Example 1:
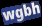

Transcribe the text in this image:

wgbh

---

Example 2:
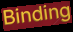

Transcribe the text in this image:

Binding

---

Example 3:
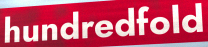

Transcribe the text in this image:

hundredfold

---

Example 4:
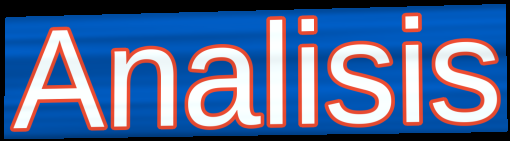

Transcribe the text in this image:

Analisis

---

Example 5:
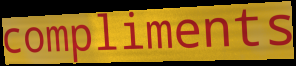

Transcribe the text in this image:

compliments